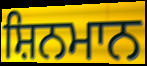
ਸ਼ਿਨਮਾਨ